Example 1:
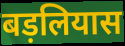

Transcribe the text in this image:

बड़लियास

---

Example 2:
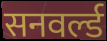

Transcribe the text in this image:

सनवर्ल्ड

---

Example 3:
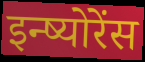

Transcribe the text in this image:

इन्ष्योरेंस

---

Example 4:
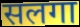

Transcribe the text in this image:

सलगा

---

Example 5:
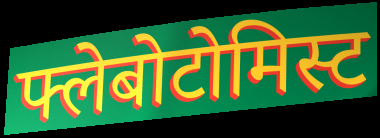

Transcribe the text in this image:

फ्लेबोटोमिस्ट